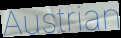
Austrian